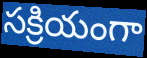
సక్రియంగా